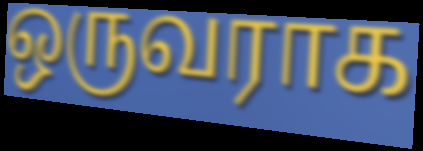
ஒருவராக